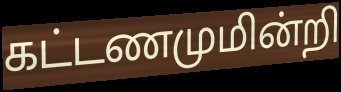
கட்டணமுமின்றி